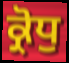
ਕ੍ਰੋਧੁ